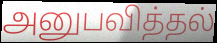
அனுபவித்தல்